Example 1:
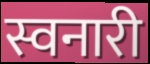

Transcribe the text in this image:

स्वनारी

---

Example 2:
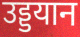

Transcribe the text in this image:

उड्डयान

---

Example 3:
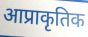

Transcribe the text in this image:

आप्राकृतिक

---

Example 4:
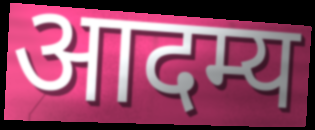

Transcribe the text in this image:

आदम्य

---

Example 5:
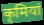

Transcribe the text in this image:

कृमियां